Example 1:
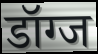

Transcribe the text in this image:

डॉग्ज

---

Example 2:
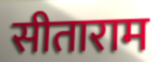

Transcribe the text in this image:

सीताराम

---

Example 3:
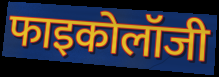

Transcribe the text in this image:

फाइकोलॉजी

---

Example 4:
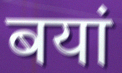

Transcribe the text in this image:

बयां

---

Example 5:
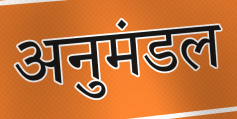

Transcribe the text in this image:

अनुमंडल